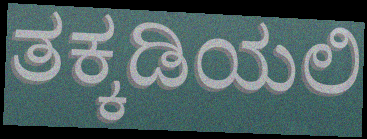
ತಕ್ಕಡಿಯಲಿ